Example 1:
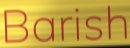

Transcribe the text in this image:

Barish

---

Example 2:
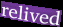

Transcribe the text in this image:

relived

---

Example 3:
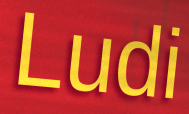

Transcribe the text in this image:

Ludi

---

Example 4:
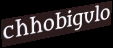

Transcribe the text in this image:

chhobigulo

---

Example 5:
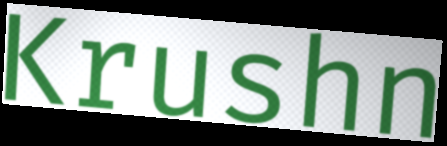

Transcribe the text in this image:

Krushn